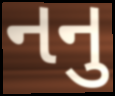
નનુ